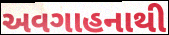
અવગાહનાથી